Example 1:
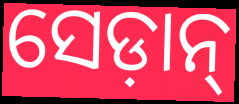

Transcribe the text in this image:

ସେଡ଼ାନ୍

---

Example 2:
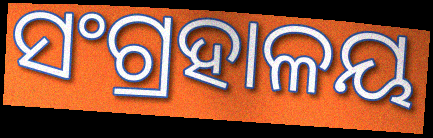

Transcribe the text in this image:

ସଂଗ୍ରହାଳୟ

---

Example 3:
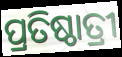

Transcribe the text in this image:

ପ୍ରତିଷ୍ଠାତ୍ରୀ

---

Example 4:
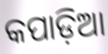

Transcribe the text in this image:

କପାଡ଼ିଆ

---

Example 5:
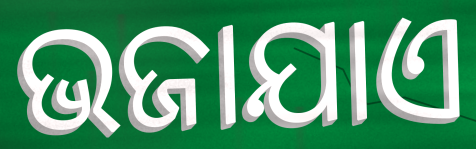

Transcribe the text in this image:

ଭଜାଯାଏ